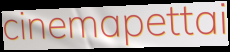
cinemapettai